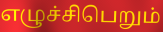
எழுச்சிபெறும்